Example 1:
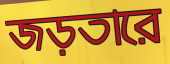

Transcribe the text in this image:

জড়তারে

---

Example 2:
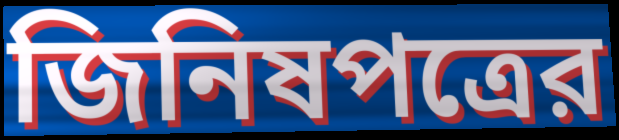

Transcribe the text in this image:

জিনিষপত্রের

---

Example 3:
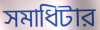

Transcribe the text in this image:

সমাধিটার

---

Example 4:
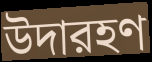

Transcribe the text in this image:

উদারহণ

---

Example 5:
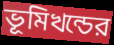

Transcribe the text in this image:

ভূমিখন্ডের